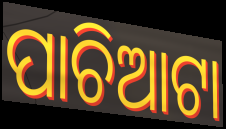
ପାଚିଆଟା